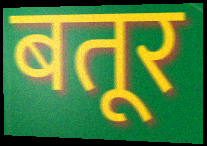
बतूर